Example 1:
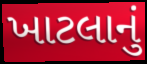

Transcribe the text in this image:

ખાટલાનું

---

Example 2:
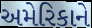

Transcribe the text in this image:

અમેરિકાને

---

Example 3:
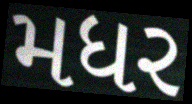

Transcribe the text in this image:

મધર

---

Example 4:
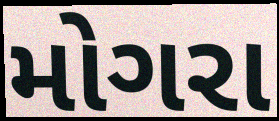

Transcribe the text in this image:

મોગરા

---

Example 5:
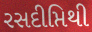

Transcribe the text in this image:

રસદીપ્તિથી